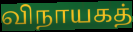
விநாயகத்